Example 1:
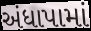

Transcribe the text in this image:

અંધાપામાં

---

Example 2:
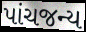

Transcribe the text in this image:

પાંચજન્ય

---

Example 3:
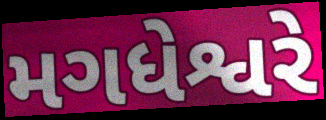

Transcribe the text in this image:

મગધેશ્વરે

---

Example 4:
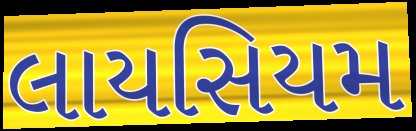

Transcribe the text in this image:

લાયસિયમ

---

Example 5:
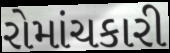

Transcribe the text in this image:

રોમાંચકારી